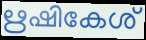
ഋഷികേശ്